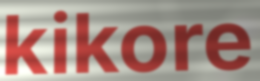
kikore